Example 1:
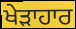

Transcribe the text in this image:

ਖੇੜਾਹਾਰ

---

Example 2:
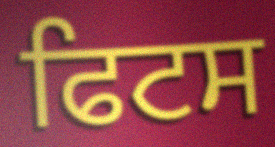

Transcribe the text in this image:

ਫਿਟਸ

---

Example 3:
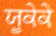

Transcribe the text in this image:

ਯੂਕੇਕੇ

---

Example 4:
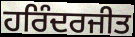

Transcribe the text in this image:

ਹਰਿੰਦਰਜੀਤ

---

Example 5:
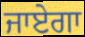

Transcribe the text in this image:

ਜਾਏਗਾ